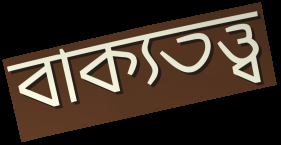
বাক্যতত্ত্ব